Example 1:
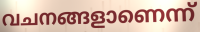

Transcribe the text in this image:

വചനങ്ങളാണെന്ന്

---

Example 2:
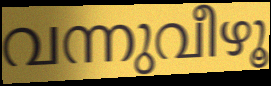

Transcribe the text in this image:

വന്നുവീഴൂ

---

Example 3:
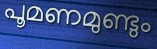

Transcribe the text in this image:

പൂമണമുണ്ടും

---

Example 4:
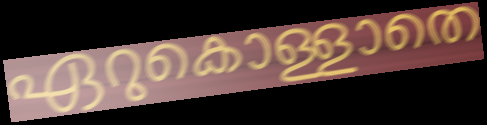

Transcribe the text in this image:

ഏറുകൊള്ളാതെ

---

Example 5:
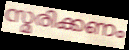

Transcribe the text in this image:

സ്മരിക്കണം